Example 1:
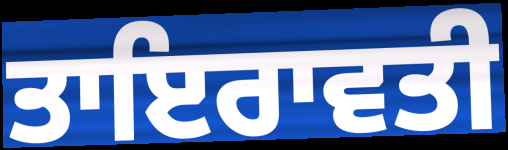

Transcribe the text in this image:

ਤਾਇਰਾਵਤੀ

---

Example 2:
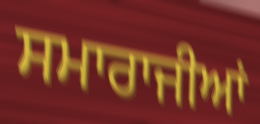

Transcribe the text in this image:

ਸਮਾਰਾਜੀਆਂ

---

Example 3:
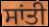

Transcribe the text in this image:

ਸਾਂਤੀ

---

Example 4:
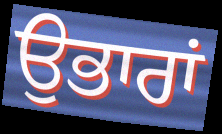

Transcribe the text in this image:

ਉਭਾਰਾਂ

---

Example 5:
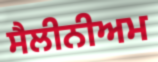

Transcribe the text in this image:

ਸੈਲੀਨੀਅਮ